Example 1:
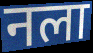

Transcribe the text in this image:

नला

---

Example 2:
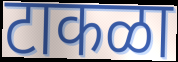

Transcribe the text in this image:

टाकळा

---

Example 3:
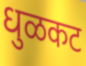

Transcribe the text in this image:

धुळकट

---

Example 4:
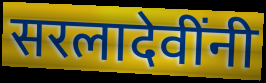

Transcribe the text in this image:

सरलादेवींनी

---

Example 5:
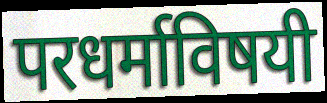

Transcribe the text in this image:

परधर्माविषयी